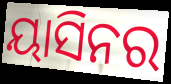
ୟାସିନର